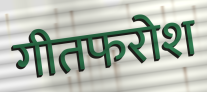
गीतफरोश